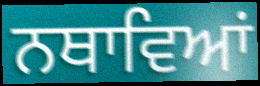
ਨਥਾਵਿਆਂ